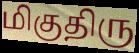
மிகுதிரு